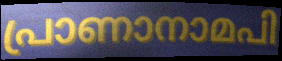
പ്രാണാനാമപി